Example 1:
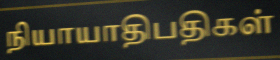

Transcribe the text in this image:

நியாயாதிபதிகள்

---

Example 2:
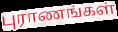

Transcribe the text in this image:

புராணங்கள்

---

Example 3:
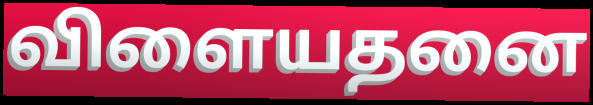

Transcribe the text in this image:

விளையதனை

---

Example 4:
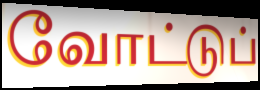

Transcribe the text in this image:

வோட்டுப்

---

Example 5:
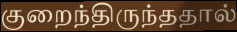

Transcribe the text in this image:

குறைந்திருந்ததால்